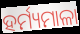
ହର୍ମ୍ୟମାଳା